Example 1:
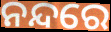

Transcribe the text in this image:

ନନ୍ଦରେ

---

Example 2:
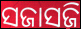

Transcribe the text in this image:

ସଜାସଜି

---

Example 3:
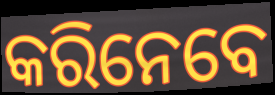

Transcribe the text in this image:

କରିନେବେ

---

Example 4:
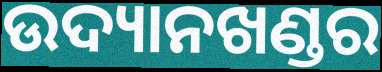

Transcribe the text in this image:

ଉଦ୍ୟାନଖଣ୍ଡର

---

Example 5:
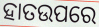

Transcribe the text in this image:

ହାତଉପରେ